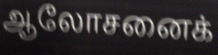
ஆலோசனைக்